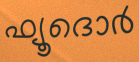
ഫ്യൂദൊർ